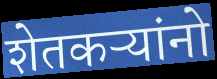
शेतकऱ्यांनो